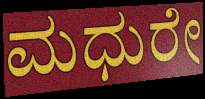
ಮಧುರೇ